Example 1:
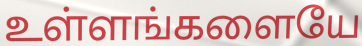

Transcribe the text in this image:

உள்ளங்களையே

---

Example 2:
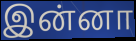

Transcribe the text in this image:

இன்னா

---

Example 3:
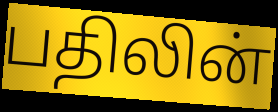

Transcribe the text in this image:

பதிலின்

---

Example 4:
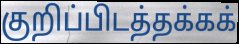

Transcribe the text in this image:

குறிப்பிடத்தக்கக்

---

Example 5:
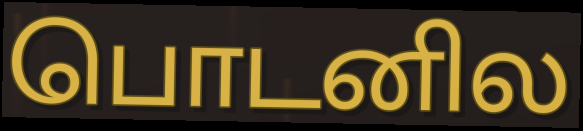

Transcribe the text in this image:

பொடனில